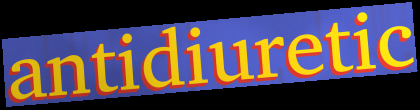
antidiuretic